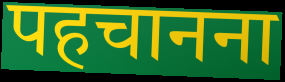
पहचानना